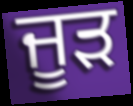
ਜੂੜ